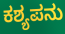
ಕಶ್ಯಪನು